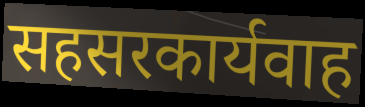
सहसरकार्यवाह